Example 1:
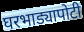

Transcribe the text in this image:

घरभाड्यापोटी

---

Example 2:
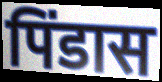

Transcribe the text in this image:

पिंडास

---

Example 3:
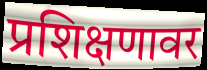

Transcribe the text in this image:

प्रशिक्षणावर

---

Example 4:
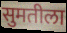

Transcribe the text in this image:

सुमतीला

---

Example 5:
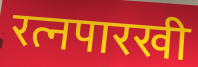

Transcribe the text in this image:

रत्नपारखी